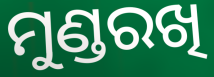
ମୁଣ୍ଡରଖି